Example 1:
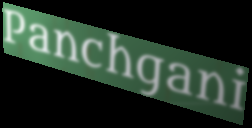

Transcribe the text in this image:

Panchgani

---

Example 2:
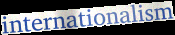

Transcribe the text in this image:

internationalism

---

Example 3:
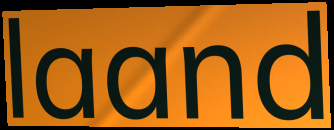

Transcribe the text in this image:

laand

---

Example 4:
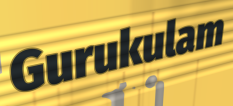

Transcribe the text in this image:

Gurukulam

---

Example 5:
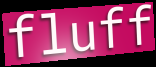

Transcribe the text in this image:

fluff